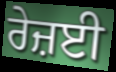
ਰੇਜ਼ਈ